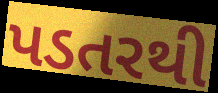
પડતરથી